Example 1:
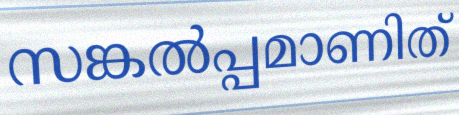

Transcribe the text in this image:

സങ്കൽപ്പമാണിത്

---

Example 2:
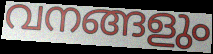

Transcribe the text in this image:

വനങ്ങളും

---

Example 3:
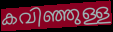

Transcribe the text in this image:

കവിഞ്ഞുള്ള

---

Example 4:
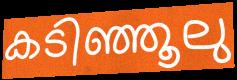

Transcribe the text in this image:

കടിഞ്ഞൂലു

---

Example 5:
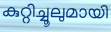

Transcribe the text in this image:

കുറ്റിച്ചൂലുമായി